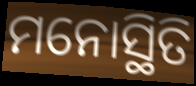
ମନୋସ୍ଥିତି